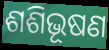
ଶଶିଭୂଷଣ